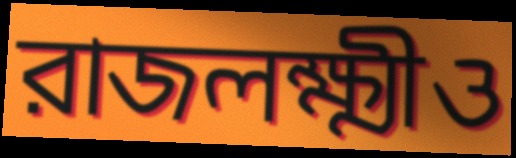
রাজলক্ষ্মীও